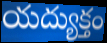
యద్యుక్తం